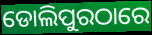
ଡୋଲିପୁରଠାରେ